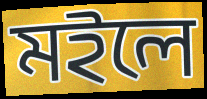
মইলে